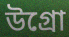
উগ্রো